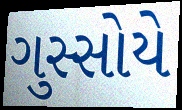
ગુસ્સોયે